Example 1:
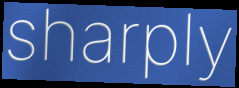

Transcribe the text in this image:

sharply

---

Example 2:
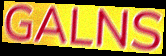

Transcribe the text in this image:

GALNS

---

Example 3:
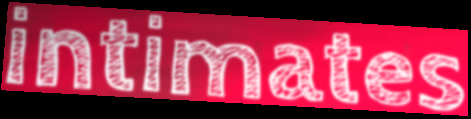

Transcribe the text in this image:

intimates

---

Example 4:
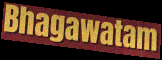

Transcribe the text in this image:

Bhagawatam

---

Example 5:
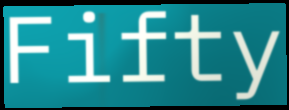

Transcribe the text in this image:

Fifty